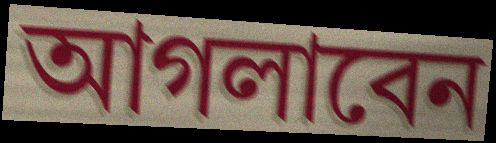
আগলাবেন